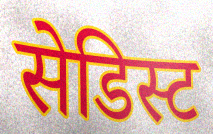
सेडिस्ट